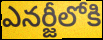
ఎనర్జీలోకి